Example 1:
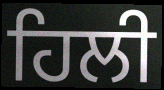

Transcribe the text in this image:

ਹਿਲੀ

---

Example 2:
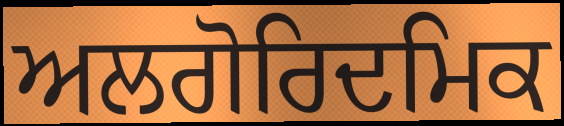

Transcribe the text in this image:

ਅਲਗੋਰਿਦਮਿਕ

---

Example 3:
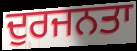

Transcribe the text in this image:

ਦੁਰਜਨਤਾ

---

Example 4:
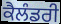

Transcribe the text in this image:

ਕੈਲੰਡਰੀ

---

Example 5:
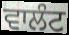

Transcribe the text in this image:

ਵਾਲੰਟ